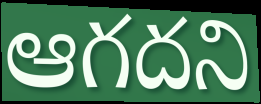
ఆగదని